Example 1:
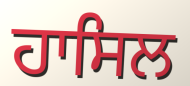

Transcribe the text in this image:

ਹਾਸਿਲ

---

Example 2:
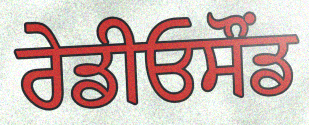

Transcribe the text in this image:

ਰੇਡੀਓਸੌਂਡ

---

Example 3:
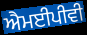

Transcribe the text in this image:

ਐਮਈਪੀਵੀ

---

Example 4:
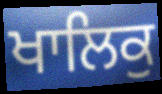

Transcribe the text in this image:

ਖਾਲਿਕੁ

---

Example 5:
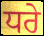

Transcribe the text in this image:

ਧਰੇ